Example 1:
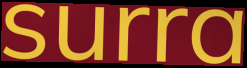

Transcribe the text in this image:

surra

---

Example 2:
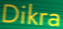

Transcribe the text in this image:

Dikra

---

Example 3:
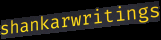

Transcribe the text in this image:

shankarwritings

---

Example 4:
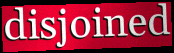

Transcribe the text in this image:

disjoined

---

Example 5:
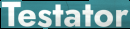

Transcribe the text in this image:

Testator